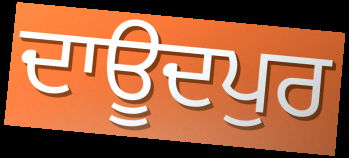
ਦਾਊਦਪੁਰ